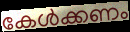
കേൾക്കണം